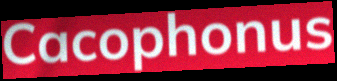
Cacophonus